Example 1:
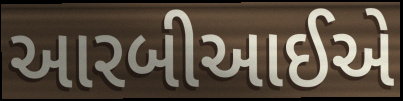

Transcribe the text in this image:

આરબીઆઈએ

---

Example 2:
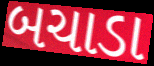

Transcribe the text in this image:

બચાડા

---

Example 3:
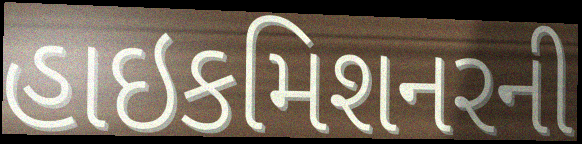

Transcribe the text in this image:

હાઇકમિશનરની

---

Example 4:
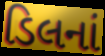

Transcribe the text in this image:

ડિલનાં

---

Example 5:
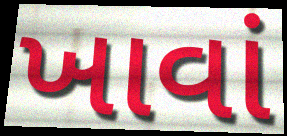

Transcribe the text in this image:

ખાવાં